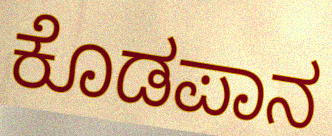
ಕೊಡಪಾನ